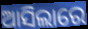
ଆସିଲାରେ